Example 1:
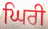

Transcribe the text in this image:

ਘਿਰੀ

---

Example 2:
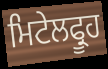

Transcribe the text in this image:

ਮਿਟੇਲਫ੍ਰੂਹ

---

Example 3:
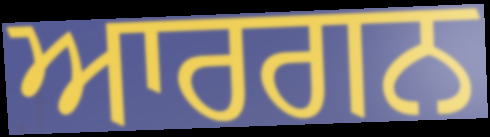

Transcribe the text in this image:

ਆਰਗਨ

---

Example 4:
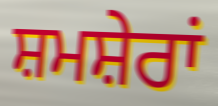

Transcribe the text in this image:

ਸ਼ਮਸ਼ੇਰਾਂ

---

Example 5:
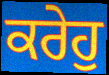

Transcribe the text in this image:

ਕਰੇਹੁ